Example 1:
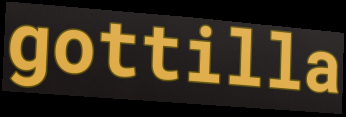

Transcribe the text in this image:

gottilla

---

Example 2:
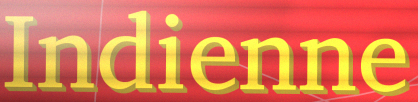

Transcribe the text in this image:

Indienne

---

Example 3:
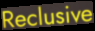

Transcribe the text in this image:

Reclusive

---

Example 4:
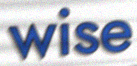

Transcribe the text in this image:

wise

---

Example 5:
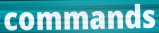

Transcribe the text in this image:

commands